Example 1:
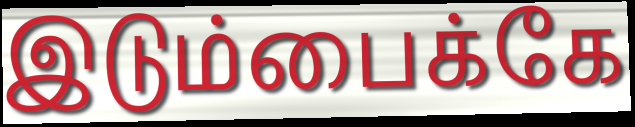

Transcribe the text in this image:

இடும்பைக்கே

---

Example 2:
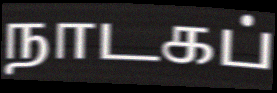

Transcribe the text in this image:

நாடகப்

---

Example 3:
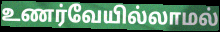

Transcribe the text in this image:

உணர்வேயில்லாமல்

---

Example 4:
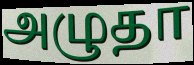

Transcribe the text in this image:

அழுதா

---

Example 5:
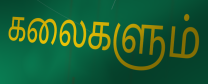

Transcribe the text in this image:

கலைகளும்